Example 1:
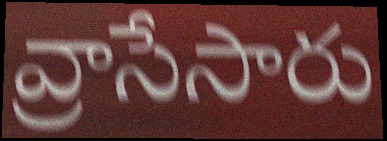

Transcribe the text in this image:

వ్రాసేసారు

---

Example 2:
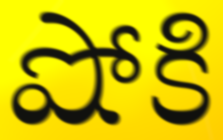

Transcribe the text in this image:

షోకి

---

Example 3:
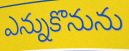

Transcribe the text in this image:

ఎన్నుకొనును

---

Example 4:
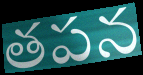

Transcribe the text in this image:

తపన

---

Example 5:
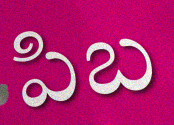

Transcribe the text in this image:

పిబ